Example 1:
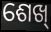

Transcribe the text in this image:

ଶେଖ୍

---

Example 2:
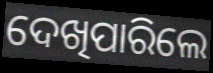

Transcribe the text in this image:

ଦେଖିପାରିଲେ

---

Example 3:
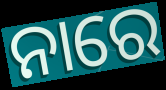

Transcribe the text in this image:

ନାରେ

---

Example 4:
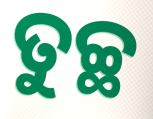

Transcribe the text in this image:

ତୁଚ୍ଛ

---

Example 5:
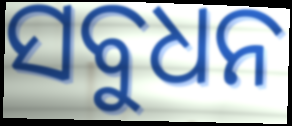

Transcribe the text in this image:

ସବୁଧନ